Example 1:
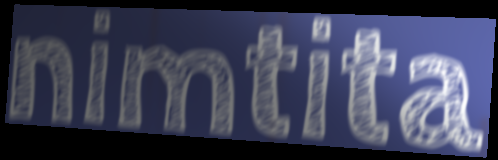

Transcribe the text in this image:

nimtita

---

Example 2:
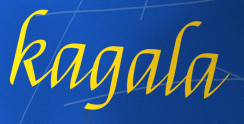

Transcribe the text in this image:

kagala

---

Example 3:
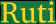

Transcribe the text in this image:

Ruti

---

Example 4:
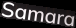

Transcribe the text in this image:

Samara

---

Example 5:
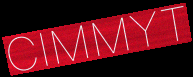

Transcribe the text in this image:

CIMMYT